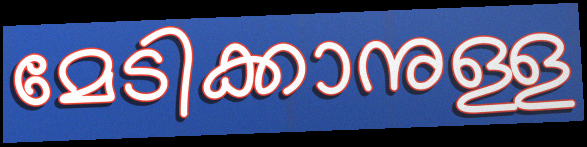
മേടിക്കാനുള്ള